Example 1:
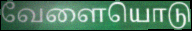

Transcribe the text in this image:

வேளையொடு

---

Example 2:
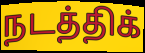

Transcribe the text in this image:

நடத்திக்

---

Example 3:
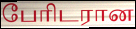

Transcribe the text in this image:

பேரிடரான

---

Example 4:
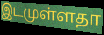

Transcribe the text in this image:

இடமுள்ளதா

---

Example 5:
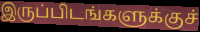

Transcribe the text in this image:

இருப்பிடங்களுக்குச்